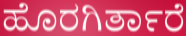
ಹೊರಗಿರ್ತಾರೆ